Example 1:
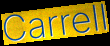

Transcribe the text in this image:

Carrell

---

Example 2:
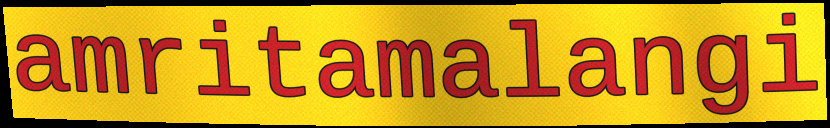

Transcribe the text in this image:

amritamalangi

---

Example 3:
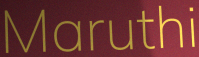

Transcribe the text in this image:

Maruthi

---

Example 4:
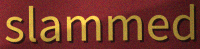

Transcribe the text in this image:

slammed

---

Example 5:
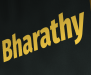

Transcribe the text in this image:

Bharathy